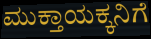
ಮುಕ್ತಾಯಕ್ಕನಿಗೆ